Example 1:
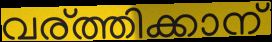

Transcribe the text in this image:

വര്ത്തിക്കാന്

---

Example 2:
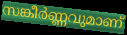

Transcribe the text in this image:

സങ്കീർണ്ണവുമാണ്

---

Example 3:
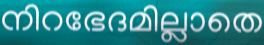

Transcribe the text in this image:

നിറഭേദമില്ലാതെ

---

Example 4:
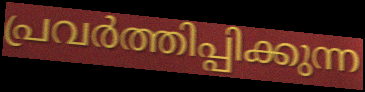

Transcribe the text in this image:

പ്രവർത്തിപ്പിക്കുന്ന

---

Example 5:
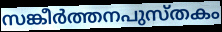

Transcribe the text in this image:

സങ്കീർത്തനപുസ്തകം